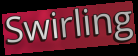
Swirling